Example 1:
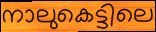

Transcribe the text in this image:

നാലുകെട്ടിലെ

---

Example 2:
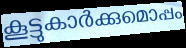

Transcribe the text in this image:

കൂട്ടുകാർക്കുമൊപ്പം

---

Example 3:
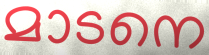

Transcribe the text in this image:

മാടനെ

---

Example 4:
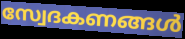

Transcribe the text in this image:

സ്വേദകണങ്ങൾ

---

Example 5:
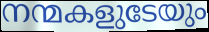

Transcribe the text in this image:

നന്മകളുടേയും